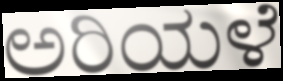
ಅರಿಯಳೆ